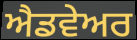
ਐਡਵੇਅਰ